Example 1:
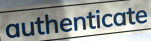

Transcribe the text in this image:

authenticate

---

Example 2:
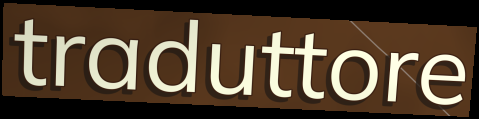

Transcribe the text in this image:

traduttore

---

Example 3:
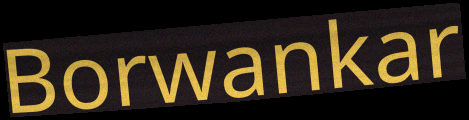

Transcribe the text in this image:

Borwankar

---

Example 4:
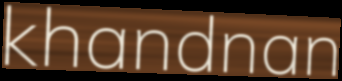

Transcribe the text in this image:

khandnan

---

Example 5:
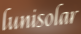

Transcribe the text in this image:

lunisolar